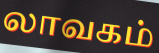
லாவகம்